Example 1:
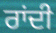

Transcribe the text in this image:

ਰਾਂਦੀ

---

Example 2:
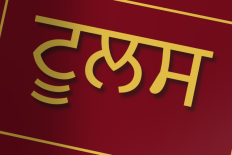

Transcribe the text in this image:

ਟੂਲਸ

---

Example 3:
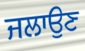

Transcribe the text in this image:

ਜਲਾਉਣ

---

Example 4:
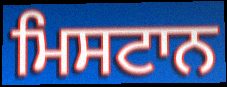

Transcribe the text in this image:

ਮਿਸਟਾਨ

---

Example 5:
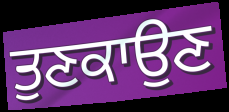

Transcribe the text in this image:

ਤੁਣਕਾਉਣ